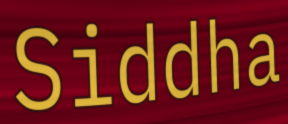
Siddha